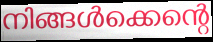
നിങ്ങൾക്കെന്റെ